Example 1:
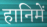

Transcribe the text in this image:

हानिमें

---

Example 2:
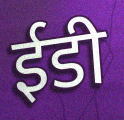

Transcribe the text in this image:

ईडी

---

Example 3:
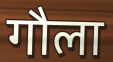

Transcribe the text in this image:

गौला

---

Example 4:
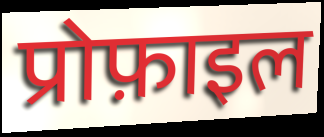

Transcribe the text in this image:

प्रोफ़ाइल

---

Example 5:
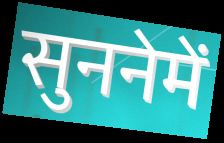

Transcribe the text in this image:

सुननेमें